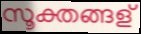
സൂക്തങ്ങള്